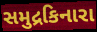
સમુદ્રકિનારા